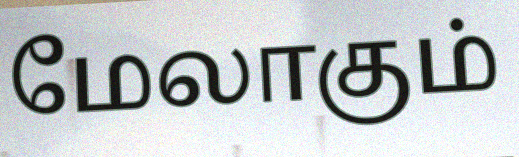
மேலாகும்